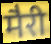
मैरी